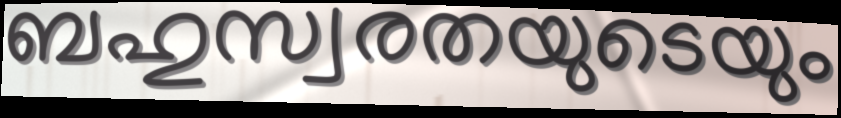
ബഹുസ്വരതയുടെയും